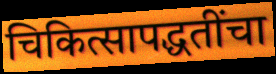
चिकित्सापद्धतींचा